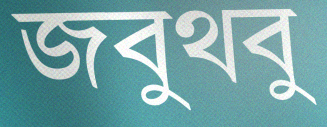
জবুথবু